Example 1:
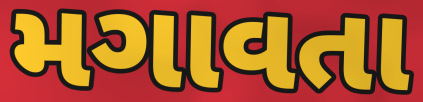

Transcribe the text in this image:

મગાવતા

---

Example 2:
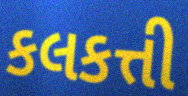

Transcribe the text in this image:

કલકત્તી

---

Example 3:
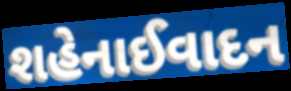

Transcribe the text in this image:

શહેનાઈવાદન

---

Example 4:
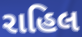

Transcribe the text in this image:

રાહિલ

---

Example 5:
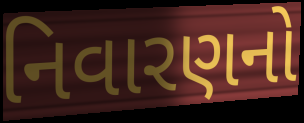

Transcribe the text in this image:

નિવારણનો